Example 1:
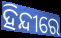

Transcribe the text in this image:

ହିନ୍ଦୀରେ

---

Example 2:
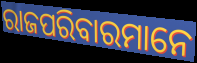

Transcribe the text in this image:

ରାଜପରିବାରମାନେ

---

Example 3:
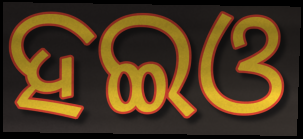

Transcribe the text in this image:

ହଇଓ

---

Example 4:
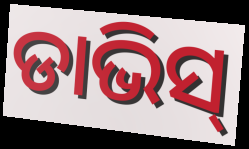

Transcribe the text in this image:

ଡାଭିସ୍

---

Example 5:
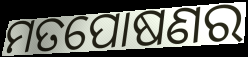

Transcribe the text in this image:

ମତପୋଷଣର